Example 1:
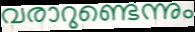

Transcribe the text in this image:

വരാറുണ്ടെന്നും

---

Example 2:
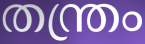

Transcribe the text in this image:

തന്ത്രം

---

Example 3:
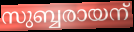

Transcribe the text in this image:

സുബ്ബരായന്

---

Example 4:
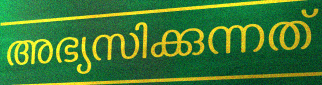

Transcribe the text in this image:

അഭ്യസിക്കുന്നത്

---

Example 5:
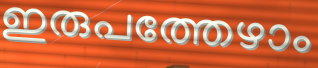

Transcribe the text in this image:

ഇരുപത്തേഴാം